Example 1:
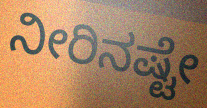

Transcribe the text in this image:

ನೀರಿನಷ್ಟೇ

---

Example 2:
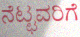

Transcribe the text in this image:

ನೆಟ್ಟವರಿಗೆ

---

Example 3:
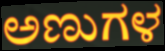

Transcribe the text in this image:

ಅಣುಗಳ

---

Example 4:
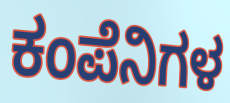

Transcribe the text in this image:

ಕಂಪೆನಿಗಳ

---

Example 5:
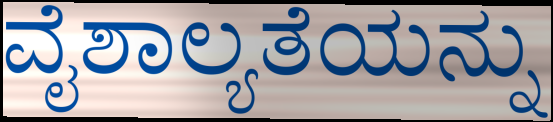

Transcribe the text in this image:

ವೈಶಾಲ್ಯತೆಯನ್ನು